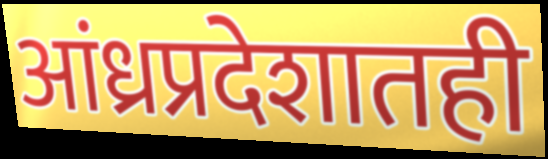
आंध्रप्रदेशातही